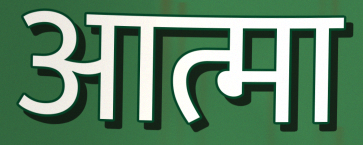
आत्मा